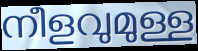
നീളവുമുള്ള